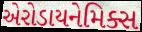
એરોડાયનેમિક્સ